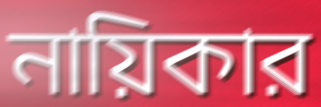
নায়িকার